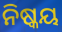
ନିଷ୍କୟ